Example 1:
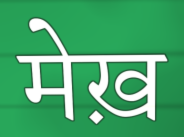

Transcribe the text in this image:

मेख़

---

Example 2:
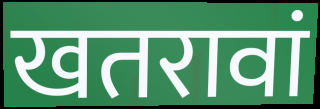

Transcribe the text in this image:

खतरावां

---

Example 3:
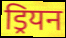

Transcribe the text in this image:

ड्रियन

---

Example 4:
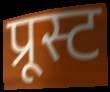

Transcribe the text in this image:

प्रूस्ट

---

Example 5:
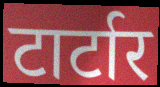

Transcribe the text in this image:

टार्टार